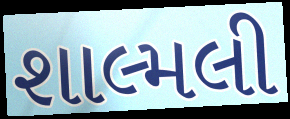
શાલ્મલી